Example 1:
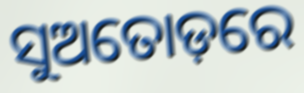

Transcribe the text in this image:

ସୁଅତୋଡ଼ରେ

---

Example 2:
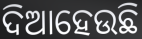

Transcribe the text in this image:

ଦିଆହେଉଛି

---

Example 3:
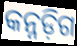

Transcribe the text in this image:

କନ୍ନଡ଼ିଗ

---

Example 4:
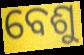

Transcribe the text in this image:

ବେଶୁ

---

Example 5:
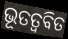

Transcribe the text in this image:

ଭୂତତ୍ଵବିତ